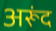
अरूंद